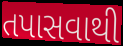
તપાસવાથી